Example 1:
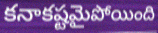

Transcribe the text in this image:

కనాకష్టమైపోయింది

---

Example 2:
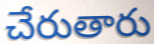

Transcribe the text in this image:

చేరుతారు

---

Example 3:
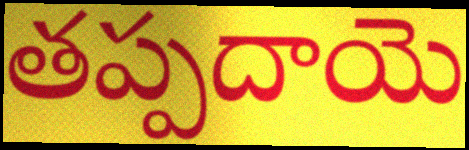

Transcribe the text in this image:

తప్పదాయె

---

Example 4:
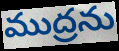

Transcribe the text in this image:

ముద్రను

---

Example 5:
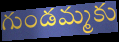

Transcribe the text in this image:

గుండమ్మకు